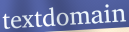
textdomain